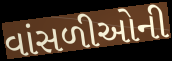
વાંસળીઓની